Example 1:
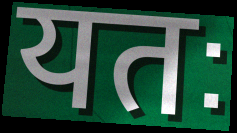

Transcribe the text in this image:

यतः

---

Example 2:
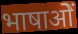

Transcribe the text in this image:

भाषाओें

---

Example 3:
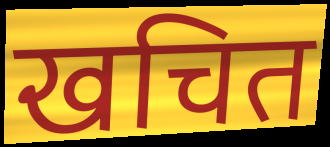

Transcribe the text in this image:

खचित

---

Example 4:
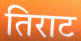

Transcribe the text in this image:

तिराट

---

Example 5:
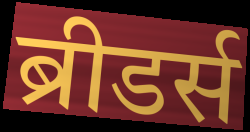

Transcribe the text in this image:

ब्रीडर्स